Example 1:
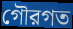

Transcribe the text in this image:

গৌরগত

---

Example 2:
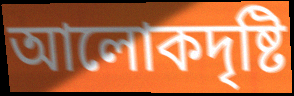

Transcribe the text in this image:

আলোকদৃষ্টি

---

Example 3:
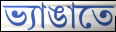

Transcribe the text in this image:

ভ্যাঙাতে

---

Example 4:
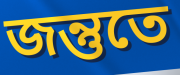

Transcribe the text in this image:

জন্তুতে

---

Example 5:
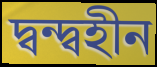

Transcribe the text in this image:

দ্বন্দ্বহীন